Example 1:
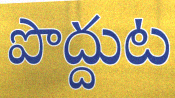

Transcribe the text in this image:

పొద్దుట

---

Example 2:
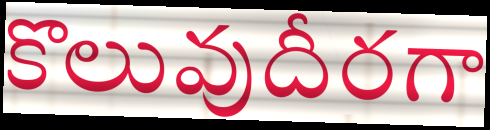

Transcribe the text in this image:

కొలువుదీరగా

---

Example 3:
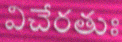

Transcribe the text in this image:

విచేరతుః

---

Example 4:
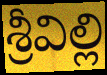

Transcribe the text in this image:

శ్రీవిల్లి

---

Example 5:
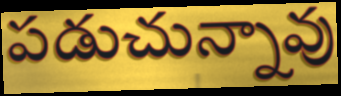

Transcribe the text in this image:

పడుచున్నావు